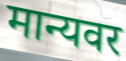
मान्यवर